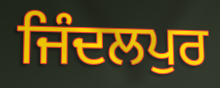
ਜਿੰਦਲਪੁਰ